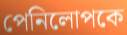
পেনিলোপকে